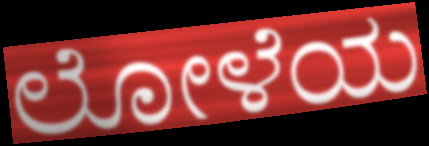
ಲೋಳೆಯ